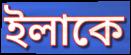
ইলাকে